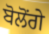
ਬੋਲੋਂਗੇ